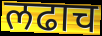
लढाच